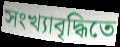
সংখ্যাবৃদ্ধিতে